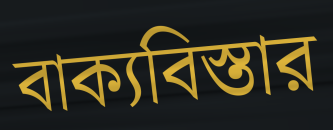
বাক্যবিস্তার